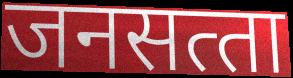
जनसत्‍ता